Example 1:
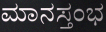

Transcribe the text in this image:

ಮಾನಸ್ತಂಭ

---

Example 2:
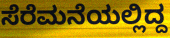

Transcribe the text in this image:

ಸೆರೆಮನೆಯಲ್ಲಿದ್ದ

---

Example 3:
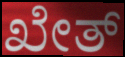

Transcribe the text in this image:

ಖೇತ್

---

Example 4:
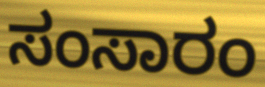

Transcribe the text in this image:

ಸಂಸಾರಂ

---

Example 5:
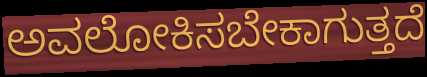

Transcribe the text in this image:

ಅವಲೋಕಿಸಬೇಕಾಗುತ್ತದೆ